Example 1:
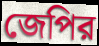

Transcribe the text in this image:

জেপির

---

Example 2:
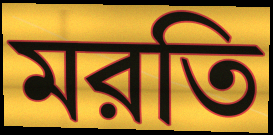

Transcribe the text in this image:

মরতি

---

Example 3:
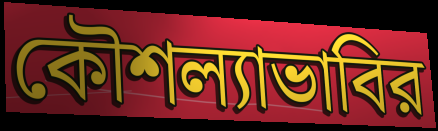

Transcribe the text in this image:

কৌশল্যাভাবির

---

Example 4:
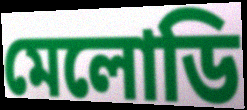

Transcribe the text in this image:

মেলোডি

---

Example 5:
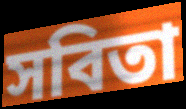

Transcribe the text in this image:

সবিতা